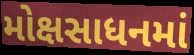
મોક્ષસાધનમાં